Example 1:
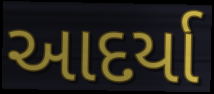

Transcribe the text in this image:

આદર્યા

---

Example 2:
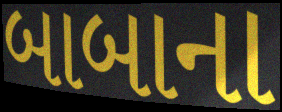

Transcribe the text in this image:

બાબાના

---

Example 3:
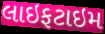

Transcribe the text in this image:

લાઇફટાઇમ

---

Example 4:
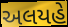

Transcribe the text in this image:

અલયહે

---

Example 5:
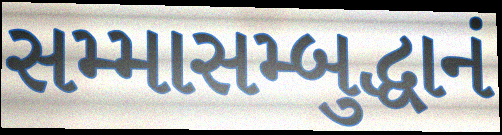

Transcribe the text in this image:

સમ્માસમ્બુદ્ધાનં